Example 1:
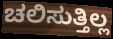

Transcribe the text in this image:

ಚಲಿಸುತ್ತಿಲ್ಲ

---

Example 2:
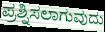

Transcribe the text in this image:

ಪ್ರಶ್ನಿಸಲಾಗುವುದು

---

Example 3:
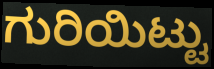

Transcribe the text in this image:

ಗುರಿಯಿಟ್ಟು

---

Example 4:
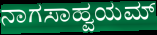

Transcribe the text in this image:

ನಾಗಸಾಹ್ವಯಮ್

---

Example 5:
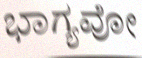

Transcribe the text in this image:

ಭಾಗ್ಯವೋ